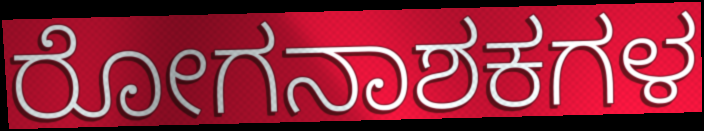
ರೋಗನಾಶಕಗಳ